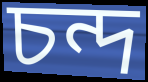
চন্দ